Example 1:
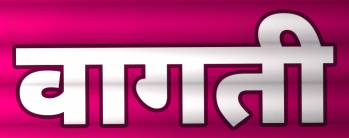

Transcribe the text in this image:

वागती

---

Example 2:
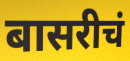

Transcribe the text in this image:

बासरीचं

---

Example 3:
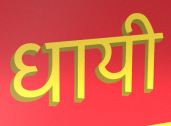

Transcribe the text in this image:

धायी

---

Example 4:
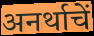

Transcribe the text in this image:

अनर्थाचें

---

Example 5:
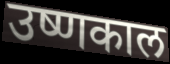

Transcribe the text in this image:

उष्णकाल